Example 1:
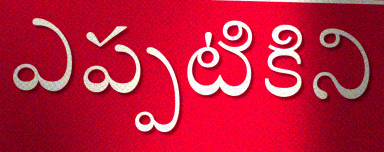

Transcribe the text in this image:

ఎప్పటికిని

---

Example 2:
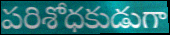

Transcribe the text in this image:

పరిశోధకుడుగా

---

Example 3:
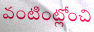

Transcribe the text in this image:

వంటింట్లోంచి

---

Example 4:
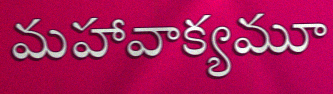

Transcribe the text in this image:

మహావాక్యమూ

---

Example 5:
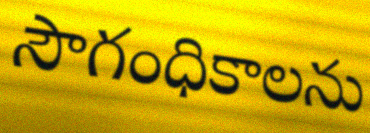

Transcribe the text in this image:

సౌగంధికాలను